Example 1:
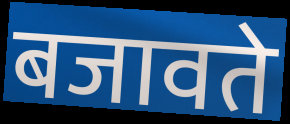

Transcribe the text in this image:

बजावते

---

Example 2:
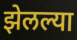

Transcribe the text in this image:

झेलल्या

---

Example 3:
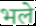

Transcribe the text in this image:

भले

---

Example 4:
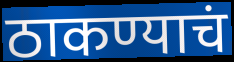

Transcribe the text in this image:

ठाकण्याचं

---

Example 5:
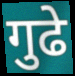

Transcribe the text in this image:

गुढे